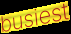
busiest